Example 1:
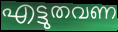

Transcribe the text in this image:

എട്ടുതവണ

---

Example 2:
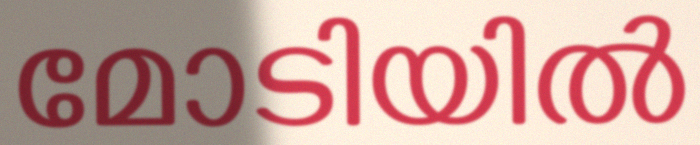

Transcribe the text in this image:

മോടിയിൽ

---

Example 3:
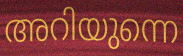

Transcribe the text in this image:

അറിയുന്നെ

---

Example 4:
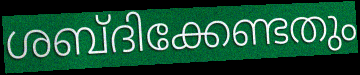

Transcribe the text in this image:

ശബ്ദിക്കേണ്ടതും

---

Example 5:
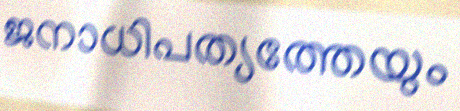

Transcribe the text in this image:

ജനാധിപത്യത്തേയും